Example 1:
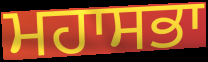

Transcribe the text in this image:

ਮਹਾਸਭਾ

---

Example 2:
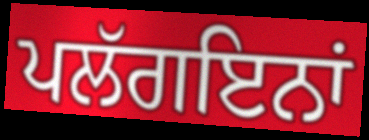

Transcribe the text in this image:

ਪਲੱਗਇਨਾਂ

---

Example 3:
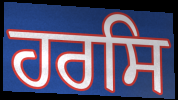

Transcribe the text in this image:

ਹਰਸਿ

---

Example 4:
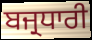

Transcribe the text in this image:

ਬਜ੍ਰਧਾਰੀ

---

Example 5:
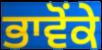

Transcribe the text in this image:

ਭਾਵੋਂਕੇ